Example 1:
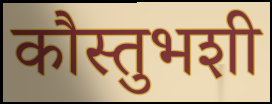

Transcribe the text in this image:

कौस्तुभशी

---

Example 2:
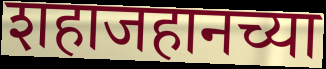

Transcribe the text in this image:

शहाजहानच्या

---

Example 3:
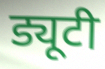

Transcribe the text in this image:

ड्यूटी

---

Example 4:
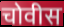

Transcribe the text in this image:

चोवीस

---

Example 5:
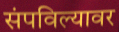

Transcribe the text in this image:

संपविल्यावर